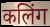
कलिंग